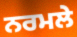
ਨਰਮਲੇ